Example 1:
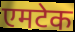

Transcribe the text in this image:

एमटेक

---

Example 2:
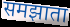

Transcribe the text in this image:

समझाता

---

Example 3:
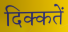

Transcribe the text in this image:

दिक्कतें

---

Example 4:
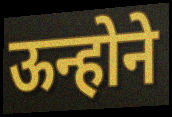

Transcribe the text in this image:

ऊन्होने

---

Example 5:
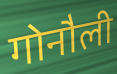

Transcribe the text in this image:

गोनौली